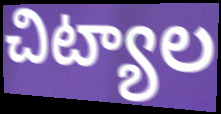
చిట్యాల